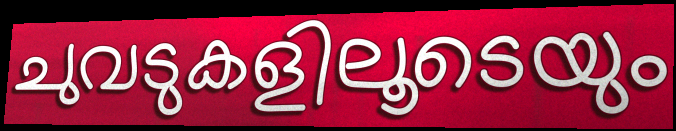
ചുവടുകളിലൂടെയും